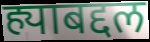
ह्याबद्दल